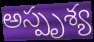
అస్పృశ్య